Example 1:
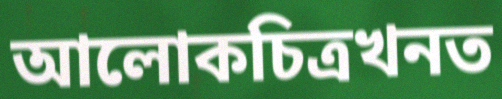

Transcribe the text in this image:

আলোকচিত্ৰখনত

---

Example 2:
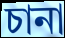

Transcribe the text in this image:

চানা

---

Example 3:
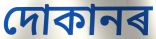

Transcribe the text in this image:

দোকানৰ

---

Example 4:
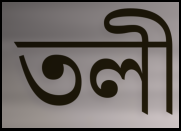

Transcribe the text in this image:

তলী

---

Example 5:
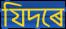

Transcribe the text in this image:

যিদৰে